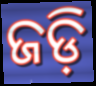
ଜଡ଼ି